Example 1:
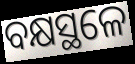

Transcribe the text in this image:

ବକ୍ଷସ୍ଥଳେ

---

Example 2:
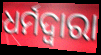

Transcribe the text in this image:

ଧର୍ମଦ୍ଵାରା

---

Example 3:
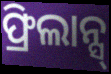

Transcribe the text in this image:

ଫ୍ରିଲାନ୍ସ୍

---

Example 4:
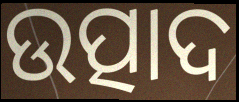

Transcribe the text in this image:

ଉତ୍ପାଦ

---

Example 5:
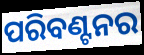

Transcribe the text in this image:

ପରିବଣ୍ଟନର